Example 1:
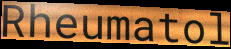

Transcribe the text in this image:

Rheumatol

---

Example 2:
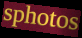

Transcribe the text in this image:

sphotos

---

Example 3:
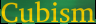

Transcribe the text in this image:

Cubism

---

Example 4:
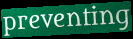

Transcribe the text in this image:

preventing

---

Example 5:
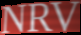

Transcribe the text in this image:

NRV